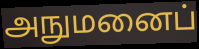
அநுமனைப்